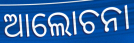
ଆଲୋଚନା